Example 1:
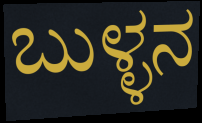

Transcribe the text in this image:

ಬುಳ್ಳನ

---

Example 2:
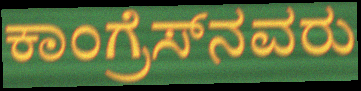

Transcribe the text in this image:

ಕಾಂಗ್ರೆಸ್‌ನವರು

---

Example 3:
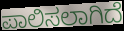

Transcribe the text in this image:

ಪಾಲಿಸಲಾಗಿದೆ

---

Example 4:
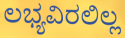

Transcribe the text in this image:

ಲಭ್ಯವಿರಲಿಲ್ಲ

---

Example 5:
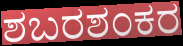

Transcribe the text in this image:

ಶಬರಶಂಕರ